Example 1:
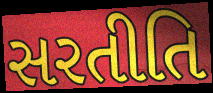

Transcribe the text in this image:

સરતીતિ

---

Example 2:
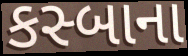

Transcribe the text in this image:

કસ્બાના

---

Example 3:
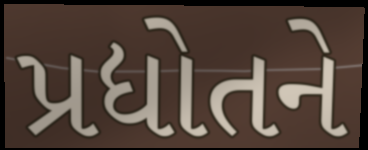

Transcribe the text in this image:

પ્રદ્યોતને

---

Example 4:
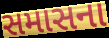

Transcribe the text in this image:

સમાસના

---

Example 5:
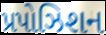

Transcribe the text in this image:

પ્રપોઝિશન